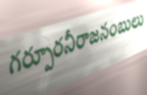
గర్పూరనీరాజనంబులు